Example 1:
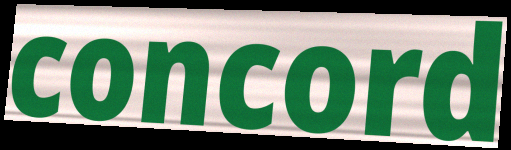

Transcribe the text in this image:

concord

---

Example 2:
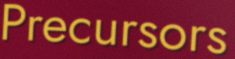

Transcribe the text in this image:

Precursors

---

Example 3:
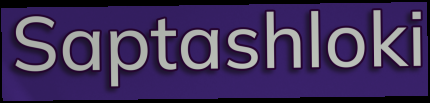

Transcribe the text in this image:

Saptashloki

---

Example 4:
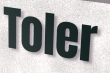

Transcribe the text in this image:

Toler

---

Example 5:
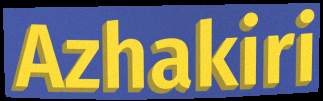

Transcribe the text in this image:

Azhakiri